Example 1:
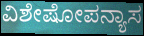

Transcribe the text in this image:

ವಿಶೇಷೋಪನ್ಯಾಸ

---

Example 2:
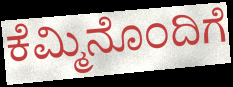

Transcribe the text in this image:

ಕೆಮ್ಮಿನೊಂದಿಗೆ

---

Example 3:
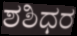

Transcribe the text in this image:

ಶಶಿಧರ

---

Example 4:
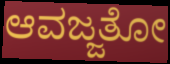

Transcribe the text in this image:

ಆವಜ್ಜತೋ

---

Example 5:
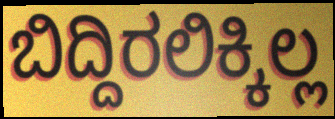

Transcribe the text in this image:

ಬಿದ್ದಿರಲಿಕ್ಕಿಲ್ಲ